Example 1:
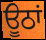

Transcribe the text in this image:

ਊਠਾਂ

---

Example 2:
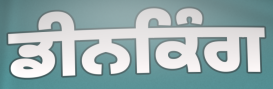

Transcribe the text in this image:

ਡੀਨਕਿੰਗ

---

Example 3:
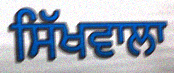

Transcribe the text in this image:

ਸਿੱਖਵਾਲਾ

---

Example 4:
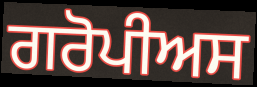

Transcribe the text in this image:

ਗਰੋਪੀਅਸ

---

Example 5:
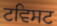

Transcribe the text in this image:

ਟਵਿਸਟ